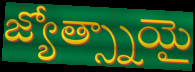
జ్యోత్స్నాయై